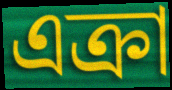
এক্রা